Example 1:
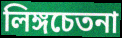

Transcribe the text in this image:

লিঙ্গচেতনা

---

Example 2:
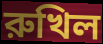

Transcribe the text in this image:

রুখিল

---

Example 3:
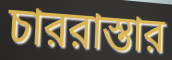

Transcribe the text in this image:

চাররাস্তার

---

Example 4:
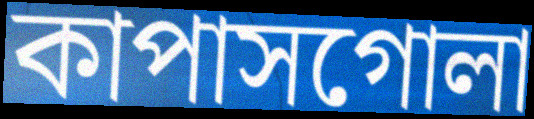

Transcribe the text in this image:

কাপাসগোলা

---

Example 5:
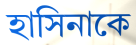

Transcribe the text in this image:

হাসিনাকে